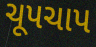
ચૂપચાપ